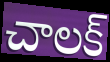
చాలక్